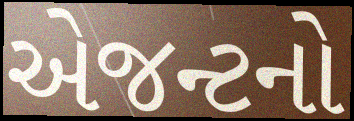
એજન્ટનો